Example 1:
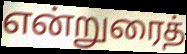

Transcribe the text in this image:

என்றுரைத்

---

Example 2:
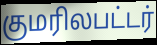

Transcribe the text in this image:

குமரிலபட்டர்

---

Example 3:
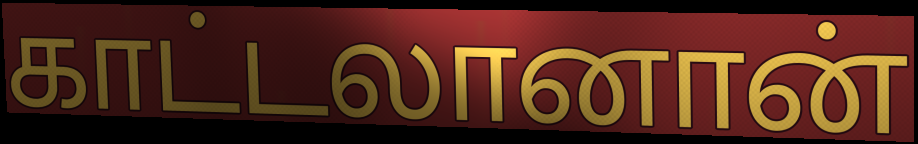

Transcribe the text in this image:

காட்டலானான்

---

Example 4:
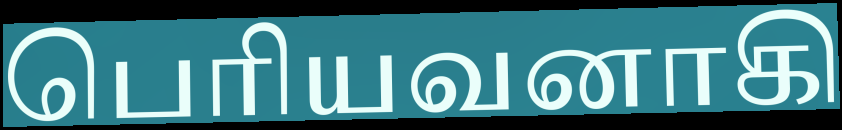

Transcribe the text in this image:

பெரியவனாகி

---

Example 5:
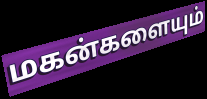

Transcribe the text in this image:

மகன்களையும்